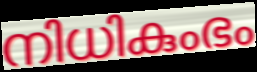
നിധികുംഭം